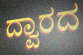
ದ್ವಾರದ